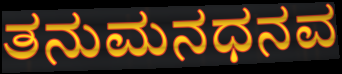
ತನುಮನಧನವ